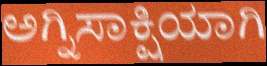
ಅಗ್ನಿಸಾಕ್ಷಿಯಾಗಿ